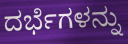
ದರ್ಭೆಗಳನ್ನು